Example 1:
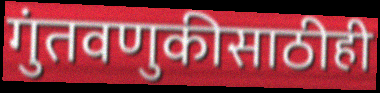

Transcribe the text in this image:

गुंतवणुकीसाठीही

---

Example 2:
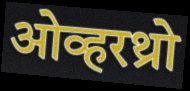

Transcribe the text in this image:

ओव्हरथ्रो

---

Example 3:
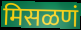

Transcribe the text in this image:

मिसळणं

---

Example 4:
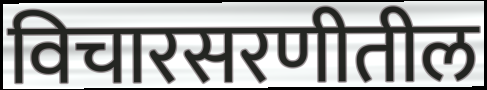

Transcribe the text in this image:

विचारसरणीतील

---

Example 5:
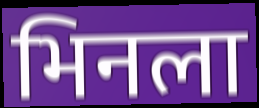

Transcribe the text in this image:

भिनला